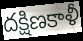
దక్షిణకాళీ